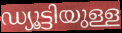
ഡ്യൂട്ടിയുള്ള